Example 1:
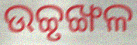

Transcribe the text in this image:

ଉଚ୍ଚୃଙ୍ଖଳ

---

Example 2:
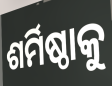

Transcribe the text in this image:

ଶର୍ମିଷ୍ଠାକୁ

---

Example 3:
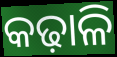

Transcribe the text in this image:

କଢ଼ାଳି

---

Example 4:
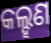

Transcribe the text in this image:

କଲ୍ହଣ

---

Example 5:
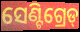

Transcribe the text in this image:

ସେଣ୍ଟିଗ୍ରେଡ୍